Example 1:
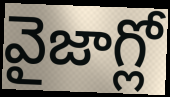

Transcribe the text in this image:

వైజాగ్లో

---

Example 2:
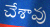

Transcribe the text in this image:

చేశావు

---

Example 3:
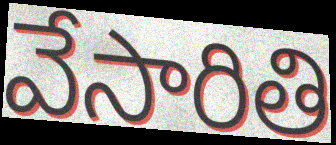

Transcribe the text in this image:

వేసారితి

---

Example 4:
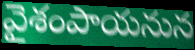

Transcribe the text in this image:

వైశంపాయనున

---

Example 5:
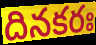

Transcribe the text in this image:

దినకరః